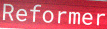
Reformer